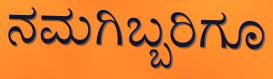
ನಮಗಿಬ್ಬರಿಗೂ